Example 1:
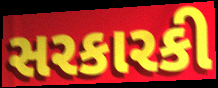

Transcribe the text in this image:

સરકારકી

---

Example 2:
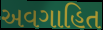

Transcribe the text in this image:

અવગાહિત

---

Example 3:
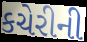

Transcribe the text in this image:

કચેરીની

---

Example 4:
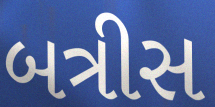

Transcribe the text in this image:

બત્રીસ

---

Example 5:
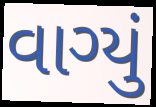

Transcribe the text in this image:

વાગ્યું